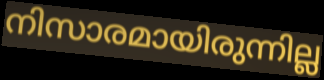
നിസാരമായിരുന്നില്ല